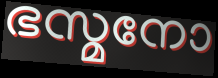
ഭസ്മനോ